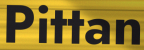
Pittan